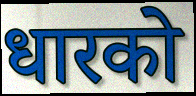
धारको